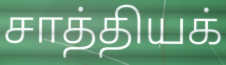
சாத்தியக்